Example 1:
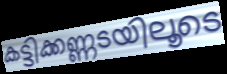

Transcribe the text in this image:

കട്ടിക്കണ്ണടയിലൂടെ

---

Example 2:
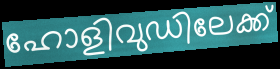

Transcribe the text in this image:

ഹോളിവുഡിലേക്ക്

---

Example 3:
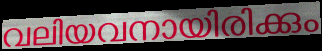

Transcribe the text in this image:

വലിയവനായിരിക്കും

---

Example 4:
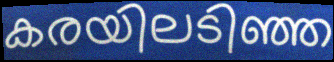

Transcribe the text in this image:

കരയിലടിഞ്ഞ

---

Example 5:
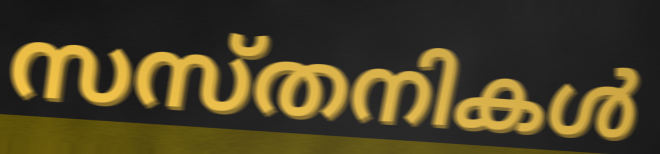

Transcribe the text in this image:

സസ്തനികൾ